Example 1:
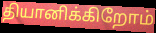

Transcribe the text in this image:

தியானிக்கிறோம்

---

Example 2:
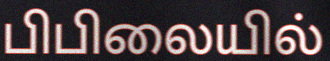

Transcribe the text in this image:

பிபிலையில்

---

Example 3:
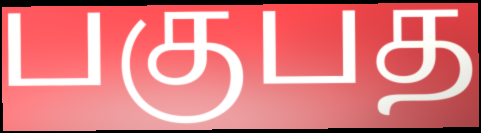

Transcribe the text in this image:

பகுபத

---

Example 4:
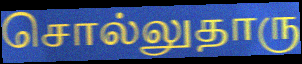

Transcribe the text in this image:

சொல்லுதாரு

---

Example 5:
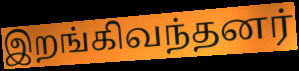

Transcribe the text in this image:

இறங்கிவந்தனர்